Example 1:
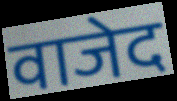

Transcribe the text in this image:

वाजेद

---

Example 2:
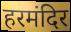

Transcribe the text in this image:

हरमंदिर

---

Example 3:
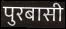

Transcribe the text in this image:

पुरबासी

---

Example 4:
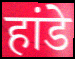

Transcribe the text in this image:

हांडे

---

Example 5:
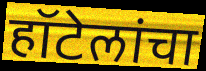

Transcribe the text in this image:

हॉटेलांचा